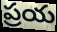
ప్రయ